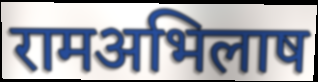
रामअभिलाष